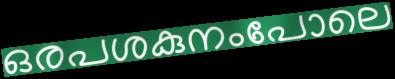
ഒരപശകുനംപോലെ